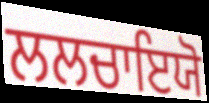
ਲਲਚਾਇਯੋ